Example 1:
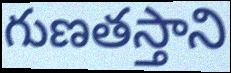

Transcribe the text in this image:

గుణతస్తాని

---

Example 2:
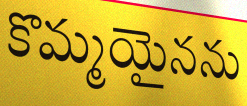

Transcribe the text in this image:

కొమ్మయైనను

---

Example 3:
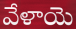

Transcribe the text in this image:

వేళాయె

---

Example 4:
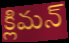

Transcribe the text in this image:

క్లిమన్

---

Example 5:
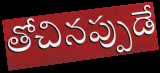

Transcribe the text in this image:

తోచినప్పుడే